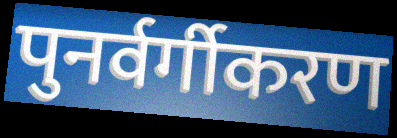
पुनर्वर्गीकरण